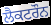
ਲੈਕਟਰੌਨ